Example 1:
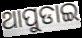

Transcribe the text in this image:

ଥାପୁଡାଇ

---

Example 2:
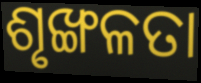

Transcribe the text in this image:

ଶୃଙ୍ଖଳତା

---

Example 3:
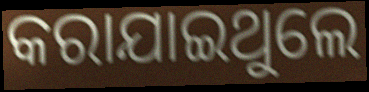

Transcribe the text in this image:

କରାଯାଇଥୁଲେ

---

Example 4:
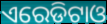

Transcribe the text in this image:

ଏରେଡିଟାଓ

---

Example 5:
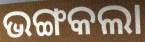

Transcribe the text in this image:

ଭଙ୍ଗକଲା